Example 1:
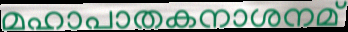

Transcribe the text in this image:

മഹാപാതകനാശനമ്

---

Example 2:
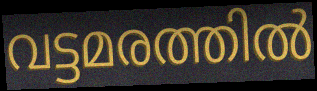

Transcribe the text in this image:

വട്ടമരത്തിൽ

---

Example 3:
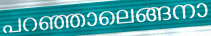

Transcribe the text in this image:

പറഞ്ഞാലെങ്ങനാ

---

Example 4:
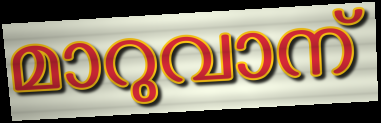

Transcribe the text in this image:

മാറുവാന്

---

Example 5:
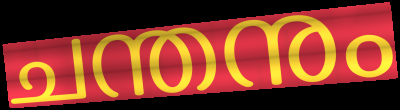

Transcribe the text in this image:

ചന്തനും